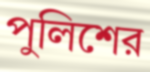
পুলিশের